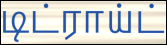
டிட்ராய்ட்